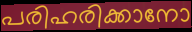
പരിഹരിക്കാനോ